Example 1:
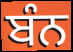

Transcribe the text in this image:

ਬੰਨ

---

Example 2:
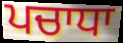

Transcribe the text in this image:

ਪਚਾਧਾ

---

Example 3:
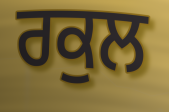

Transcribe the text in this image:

ਰਕੁਲ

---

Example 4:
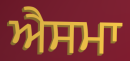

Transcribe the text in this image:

ਐਸਮਾ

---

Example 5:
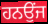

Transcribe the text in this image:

ਹਨਉਂਜ